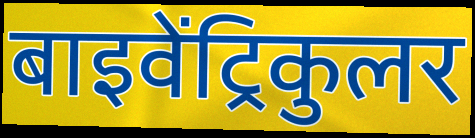
बाइवेंट्रिकुलर